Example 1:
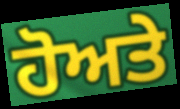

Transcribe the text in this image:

ਹੋਅਤੇ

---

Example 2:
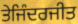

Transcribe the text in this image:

ਤੇਜਿੰਦਰਜੀਤ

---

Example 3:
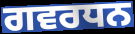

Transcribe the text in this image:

ਗਵਰਧਨ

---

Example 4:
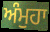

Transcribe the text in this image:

ਅੰਮੁਹਾ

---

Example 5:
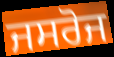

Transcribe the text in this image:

ਜਸਰੋਜ